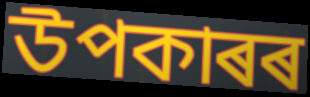
উপকাৰৰ